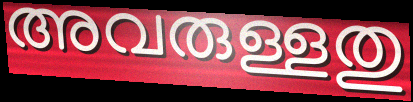
അവരുള്ളതു